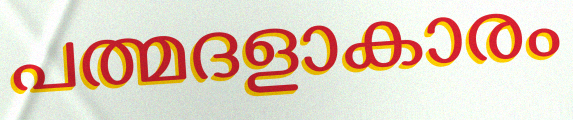
പത്മദളാകാരം